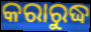
କରାରୁଦ୍ଧ